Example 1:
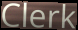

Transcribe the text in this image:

Clerk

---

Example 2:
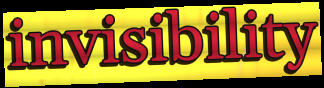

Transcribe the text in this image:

invisibility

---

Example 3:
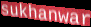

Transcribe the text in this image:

sukhanwar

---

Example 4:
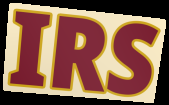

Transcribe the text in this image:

IRS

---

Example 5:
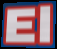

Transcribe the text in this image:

El